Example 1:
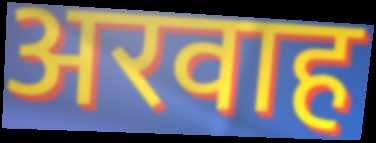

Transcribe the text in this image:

अरवाह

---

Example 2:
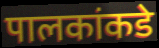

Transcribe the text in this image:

पालकांकडे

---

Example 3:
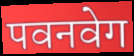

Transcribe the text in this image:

पवनवेग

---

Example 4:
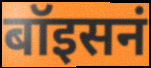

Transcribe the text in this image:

बॉइसनं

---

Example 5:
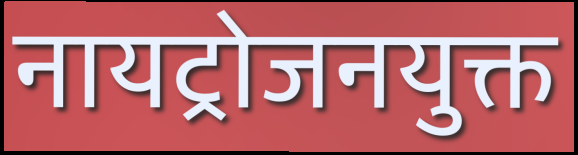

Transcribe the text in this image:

नायट्रोजनयुक्त